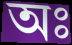
অঃ